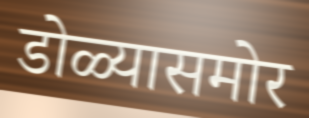
डोळ्यासमोर